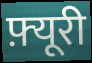
फ़्यूरी